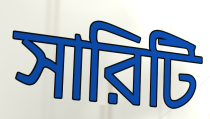
সারিটি